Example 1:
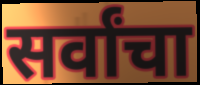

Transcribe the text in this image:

सर्वांचा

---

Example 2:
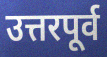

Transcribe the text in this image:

उत्तरपूर्व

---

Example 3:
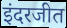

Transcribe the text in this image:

इंदरजीत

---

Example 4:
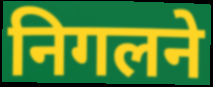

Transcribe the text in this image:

निगलने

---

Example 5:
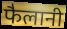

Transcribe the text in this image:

फैलानी